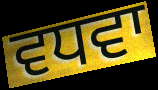
ਵਧਵਾ